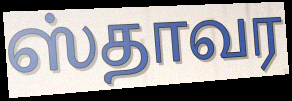
ஸ்தாவர